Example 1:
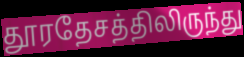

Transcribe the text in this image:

தூரதேசத்திலிருந்து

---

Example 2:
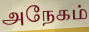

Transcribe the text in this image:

அநேகம்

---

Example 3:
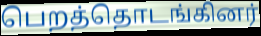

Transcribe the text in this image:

பெறத்தொடங்கினர்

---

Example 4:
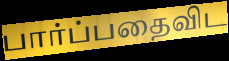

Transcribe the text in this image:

பார்ப்பதைவிட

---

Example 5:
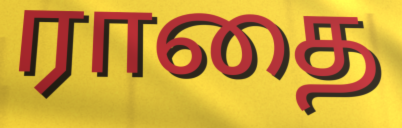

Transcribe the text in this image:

ராதை